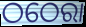
ଠଠେରା